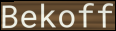
Bekoff